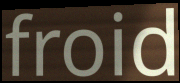
froid